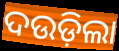
ଦଉଡ଼ିଲା